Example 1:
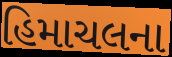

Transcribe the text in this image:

હિમાચલના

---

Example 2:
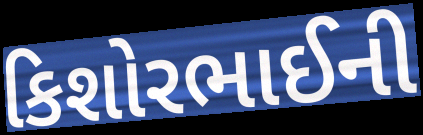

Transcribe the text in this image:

કિશોરભાઈની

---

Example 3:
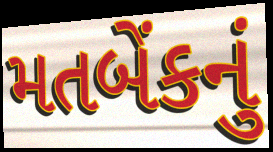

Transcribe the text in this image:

મતબેંકનું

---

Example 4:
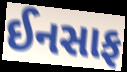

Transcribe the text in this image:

ઈનસાફ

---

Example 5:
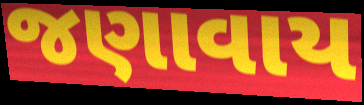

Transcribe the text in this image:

જણાવાય